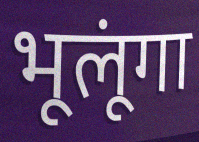
भूलूंगा